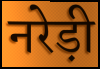
नरेड़ी